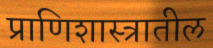
प्राणिशास्त्रातील